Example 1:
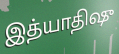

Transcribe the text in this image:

இத்யாதிஷு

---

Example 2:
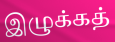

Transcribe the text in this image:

இழுக்கத்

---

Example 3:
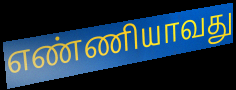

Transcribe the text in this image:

எண்ணியாவது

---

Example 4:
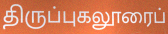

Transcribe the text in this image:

திருப்புகலூரைப்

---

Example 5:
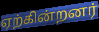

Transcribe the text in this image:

ஏற்கின்றனர்